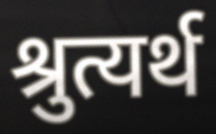
श्रुत्यर्थ